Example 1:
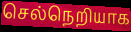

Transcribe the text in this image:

செல்நெறியாக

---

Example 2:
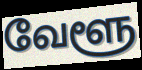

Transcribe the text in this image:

வேளூ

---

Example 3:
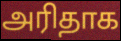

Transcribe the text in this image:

அரிதாக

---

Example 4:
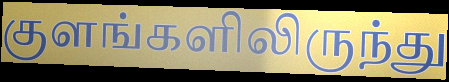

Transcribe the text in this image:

குளங்களிலிருந்து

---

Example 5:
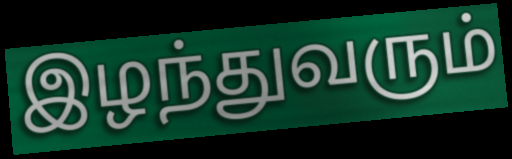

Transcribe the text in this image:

இழந்துவரும்